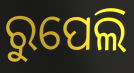
ରୁପେଲି